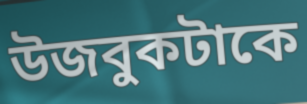
উজবুকটাকে